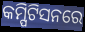
କମ୍ପିଟିସନରେ